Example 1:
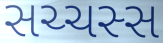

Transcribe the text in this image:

સચ્ચસ્સ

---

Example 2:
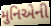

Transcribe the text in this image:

મુનિએની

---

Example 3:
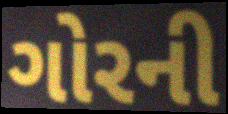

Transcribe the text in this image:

ગોરની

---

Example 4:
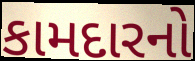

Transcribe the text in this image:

કામદારનો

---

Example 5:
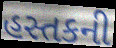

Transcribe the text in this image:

હસ્તકની